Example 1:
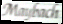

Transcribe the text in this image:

Maybach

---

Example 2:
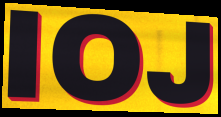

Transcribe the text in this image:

IOJ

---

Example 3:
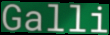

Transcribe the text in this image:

Galli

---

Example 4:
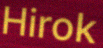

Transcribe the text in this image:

Hirok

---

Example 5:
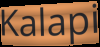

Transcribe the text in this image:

Kalapi